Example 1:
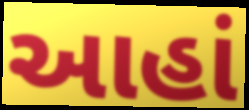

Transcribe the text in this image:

આહાં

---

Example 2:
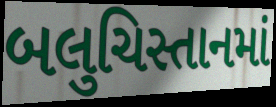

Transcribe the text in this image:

બલુચિસ્તાનમાં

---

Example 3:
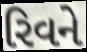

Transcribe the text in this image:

રિવને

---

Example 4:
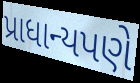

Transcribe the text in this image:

પ્રાધાન્યપણે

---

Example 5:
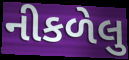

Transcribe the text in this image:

નીકળેલુ